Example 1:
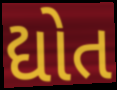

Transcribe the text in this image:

દ્યોત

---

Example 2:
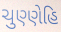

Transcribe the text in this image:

ચુણ્ણેહિ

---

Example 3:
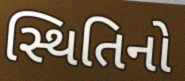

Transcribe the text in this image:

સ્થિતિનો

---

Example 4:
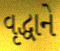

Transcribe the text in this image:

વૃદ્ધાને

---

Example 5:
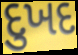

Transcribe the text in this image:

દુખદ